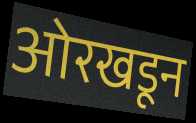
ओरखडून